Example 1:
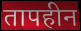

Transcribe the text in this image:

तापहीन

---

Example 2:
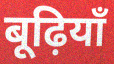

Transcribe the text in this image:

बूढ़ियाँ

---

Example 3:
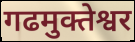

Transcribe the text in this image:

गढमुक्तेश्वर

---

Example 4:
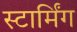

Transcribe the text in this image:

स्टार्मिंग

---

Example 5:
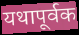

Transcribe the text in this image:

यथापूर्वक